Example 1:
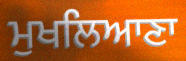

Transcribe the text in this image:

ਮੁਖਲਿਆਣਾ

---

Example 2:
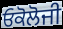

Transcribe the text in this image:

ਓਕੋਲੋਜੀ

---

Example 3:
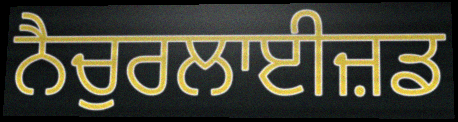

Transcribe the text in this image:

ਨੈਚੁਰਲਾਈਜ਼ਡ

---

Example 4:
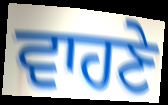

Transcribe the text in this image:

ਵਾਹਣੇ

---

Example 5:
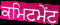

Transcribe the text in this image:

ਕਮਿਟਮੇਂਟ